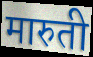
मारुती